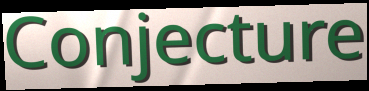
Conjecture